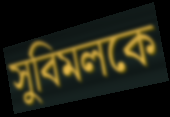
সুবিমলকে